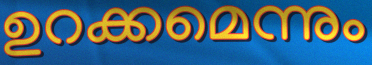
ഉറക്കമെന്നും